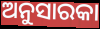
ଅନୁସାରକା